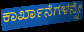
ಕಾರ್ಖಾನೆಗಳನ್ನೇ